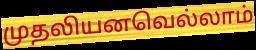
முதலியனவெல்லாம்